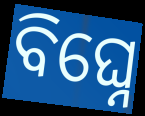
ବିଘ୍ନେ